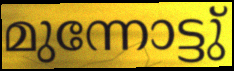
മുന്നോട്ടു്